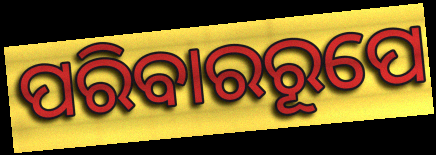
ପରିବାରରୂପେ